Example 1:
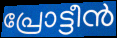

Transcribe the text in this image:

പ്രോട്ടീൻ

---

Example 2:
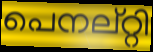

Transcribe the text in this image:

പെനല്റ്റി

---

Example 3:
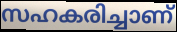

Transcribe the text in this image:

സഹകരിച്ചാണ്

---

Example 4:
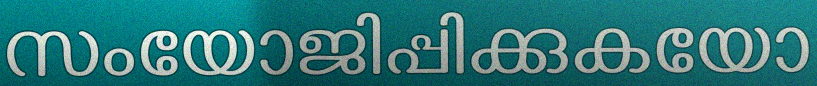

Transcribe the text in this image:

സംയോജിപ്പിക്കുകയോ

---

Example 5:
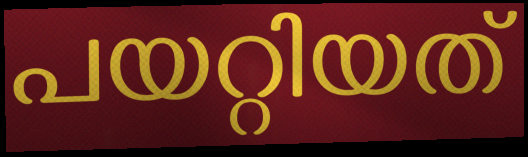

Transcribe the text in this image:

പയറ്റിയത്